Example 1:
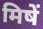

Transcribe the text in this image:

मिषें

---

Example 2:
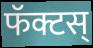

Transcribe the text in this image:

फॅक्टस्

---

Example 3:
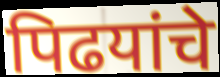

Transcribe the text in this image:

पिढयांचे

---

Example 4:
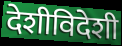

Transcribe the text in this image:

देशीविदेशी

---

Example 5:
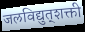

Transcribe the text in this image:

जलविद्युत्‌शक्ती